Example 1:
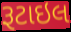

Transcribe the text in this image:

રૂટાઇલ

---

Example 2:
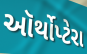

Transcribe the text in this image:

ઑર્થોપ્ટેરા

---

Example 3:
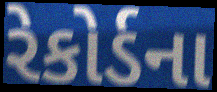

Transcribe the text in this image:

રેકોર્ડના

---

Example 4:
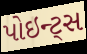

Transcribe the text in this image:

પોઇન્ટ્સ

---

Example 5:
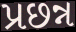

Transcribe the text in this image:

પ્રછન્ન